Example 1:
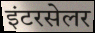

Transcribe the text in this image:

इंटरसेलर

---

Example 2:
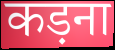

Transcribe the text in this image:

कड़ना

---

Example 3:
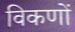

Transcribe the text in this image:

विकणों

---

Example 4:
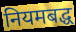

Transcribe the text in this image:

नियमबद्ध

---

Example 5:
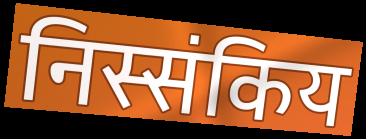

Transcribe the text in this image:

निस्संकिय